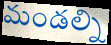
మండల్ని